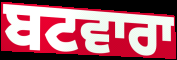
ਬਟਵਾਰਾ